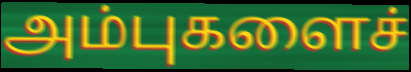
அம்புகளைச்